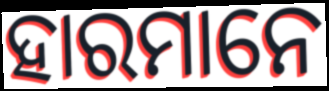
ହାରମାନେ